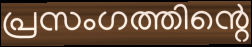
പ്രസംഗത്തിന്റെ